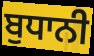
ਬੁਧਾਨੀ